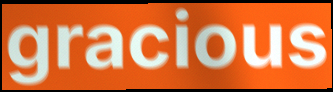
gracious